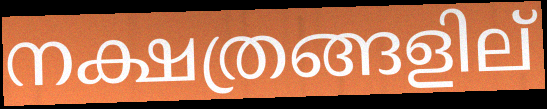
നക്ഷത്രങ്ങളില്